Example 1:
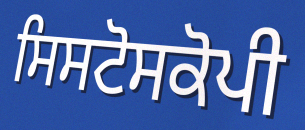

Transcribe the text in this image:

ਸਿਸਟੋਸਕੋਪੀ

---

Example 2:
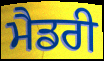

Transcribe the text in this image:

ਮੈਡਰੀ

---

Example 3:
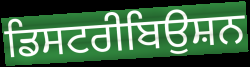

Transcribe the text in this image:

ਡਿਸਟਰੀਬਿਉਸ਼ਨ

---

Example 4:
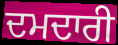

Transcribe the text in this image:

ਦਮਦਾਰੀ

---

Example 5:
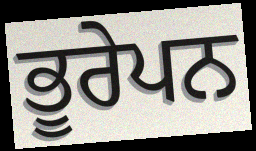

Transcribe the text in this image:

ਭੂਰੇਪਨ